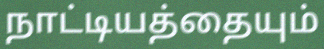
நாட்டியத்தையும்